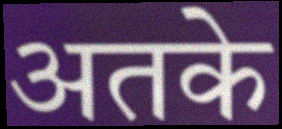
अतके